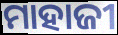
ମାହାଜୀ